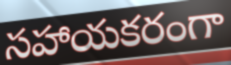
సహాయకరంగా